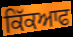
ਕਿੱਕਆਫ